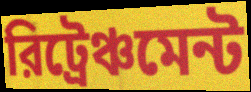
রিট্রেঞ্চমেন্ট